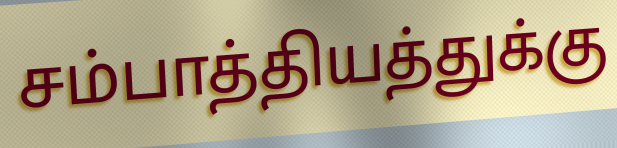
சம்பாத்தியத்துக்கு